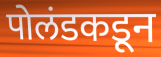
पोलंडकडून